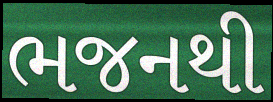
ભજનથી